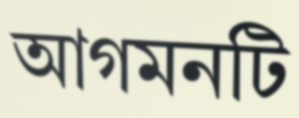
আগমনটি